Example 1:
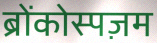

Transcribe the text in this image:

ब्रोंकोस्पज़म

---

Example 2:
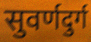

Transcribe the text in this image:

सुवर्णदुर्ग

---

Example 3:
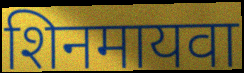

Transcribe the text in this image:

शिनमायवा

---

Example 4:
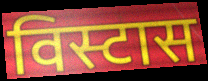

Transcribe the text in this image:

विस्टास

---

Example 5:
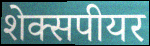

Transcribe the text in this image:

शेक्सपीयर